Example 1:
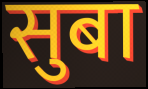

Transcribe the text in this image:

सुबा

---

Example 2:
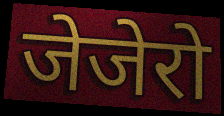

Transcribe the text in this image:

जेजेरो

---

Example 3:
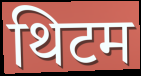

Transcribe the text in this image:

थिटम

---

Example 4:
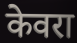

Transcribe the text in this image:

केवरा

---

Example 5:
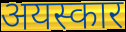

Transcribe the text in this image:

अयस्कार